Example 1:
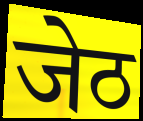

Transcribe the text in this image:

जेठ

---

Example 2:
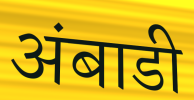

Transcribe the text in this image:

अंबाडी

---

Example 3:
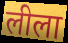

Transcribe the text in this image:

लीला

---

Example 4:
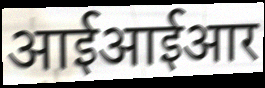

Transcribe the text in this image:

आईआईआर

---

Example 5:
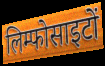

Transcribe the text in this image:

लिम्फोसाइटों